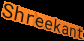
Shreekant